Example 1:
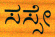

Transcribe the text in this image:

ಸಸ್ಸೇ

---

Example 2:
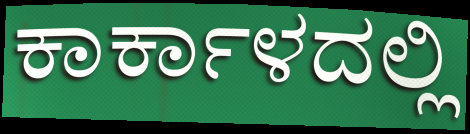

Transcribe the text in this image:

ಕಾರ್ಕಾಳದಲ್ಲಿ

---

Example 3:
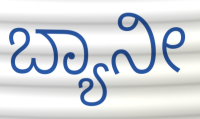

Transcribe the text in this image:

ಬ್ಯಾನೀ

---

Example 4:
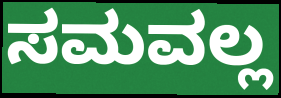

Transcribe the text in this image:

ಸಮವಲ್ಲ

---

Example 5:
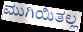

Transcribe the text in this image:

ಮುಗಿಯಿತಲ್ಲ